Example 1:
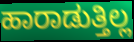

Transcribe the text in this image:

ಹಾರಾಡುತ್ತಿಲ್ಲ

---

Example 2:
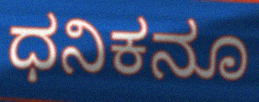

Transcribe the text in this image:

ಧನಿಕನೂ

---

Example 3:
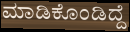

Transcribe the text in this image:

ಮಾಡಿಕೊಂಡಿದ್ದೆ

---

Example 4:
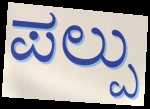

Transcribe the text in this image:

ಪಲ್ಪು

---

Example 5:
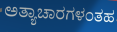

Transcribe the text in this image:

ಅತ್ಯಾಚಾರಗಳಂತಹ